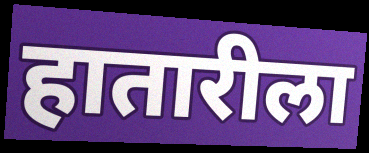
हातारीला